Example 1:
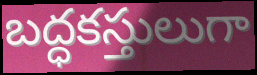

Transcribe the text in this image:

బద్ధకస్తులుగా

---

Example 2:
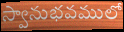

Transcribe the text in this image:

స్వానుభవములో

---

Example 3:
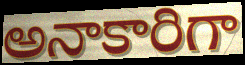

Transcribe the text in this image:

అనాకారిగా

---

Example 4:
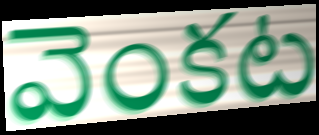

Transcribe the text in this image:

వెంకట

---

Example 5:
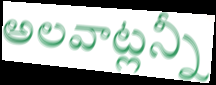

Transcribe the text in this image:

అలవాట్లన్నీ